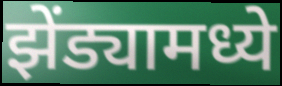
झेंड्यामध्ये